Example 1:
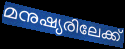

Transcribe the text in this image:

മനുഷ്യരിലേക്ക്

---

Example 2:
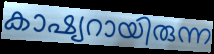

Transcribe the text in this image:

കാഷ്യറായിരുന്ന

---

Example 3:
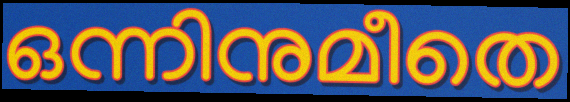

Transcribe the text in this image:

ഒന്നിനുമീതെ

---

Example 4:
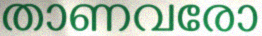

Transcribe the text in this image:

താണവരോ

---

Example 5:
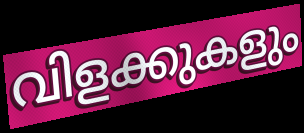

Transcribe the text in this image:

വിളക്കുകളും